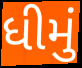
ધીમું